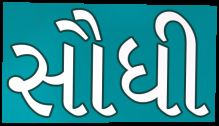
સૌધી